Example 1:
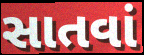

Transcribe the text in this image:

સાતવાં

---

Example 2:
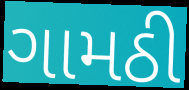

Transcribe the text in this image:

ગામઠી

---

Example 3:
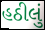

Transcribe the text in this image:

હઠીલું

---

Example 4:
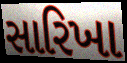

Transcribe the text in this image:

સારિખા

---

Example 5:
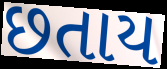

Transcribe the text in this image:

છતાય